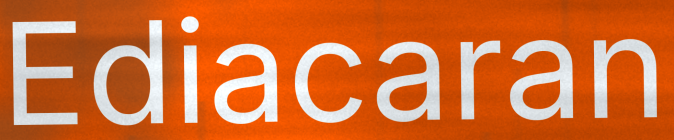
Ediacaran